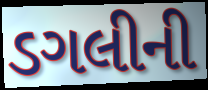
ડગલીની